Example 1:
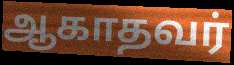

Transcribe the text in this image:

ஆகாதவர்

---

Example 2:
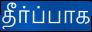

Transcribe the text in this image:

தீர்ப்பாக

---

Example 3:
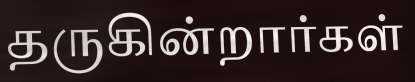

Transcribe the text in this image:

தருகின்றார்கள்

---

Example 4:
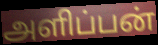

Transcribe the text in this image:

அளிப்பன்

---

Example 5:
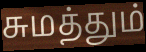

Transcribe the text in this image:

சுமத்தும்